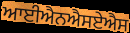
ਆਈਐਨਐਸਏਐਸ